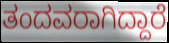
ತಂದವರಾಗಿದ್ದಾರೆ